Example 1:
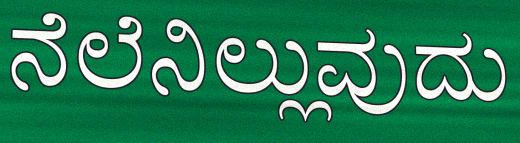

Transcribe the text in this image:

ನೆಲೆನಿಲ್ಲುವುದು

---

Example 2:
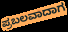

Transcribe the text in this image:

ಪ್ರಬಲವಾದಾಗ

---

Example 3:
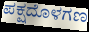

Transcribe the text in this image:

ಪಕ್ಷದೊಳಗಣ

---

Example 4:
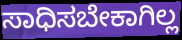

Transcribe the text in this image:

ಸಾಧಿಸಬೇಕಾಗಿಲ್ಲ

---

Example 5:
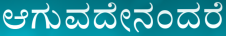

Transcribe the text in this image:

ಆಗುವದೇನಂದರೆ